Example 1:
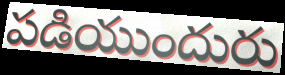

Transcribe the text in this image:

పడియుందురు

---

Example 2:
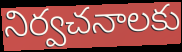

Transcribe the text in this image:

నిర్వచనాలకు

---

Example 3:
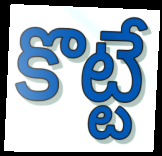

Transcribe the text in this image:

కొట్టే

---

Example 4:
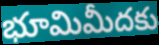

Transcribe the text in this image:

భూమిమీదకు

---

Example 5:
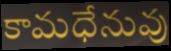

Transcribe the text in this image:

కామధేనువు